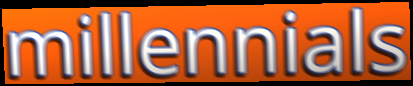
millennials